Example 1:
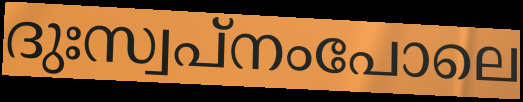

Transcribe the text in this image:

ദുഃസ്വപ്നംപോലെ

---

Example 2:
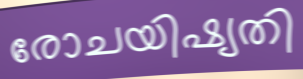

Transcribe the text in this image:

രോചയിഷ്യതി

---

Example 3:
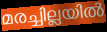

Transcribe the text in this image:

മരച്ചില്ലയിൽ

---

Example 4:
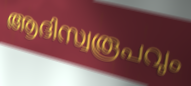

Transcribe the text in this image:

ആദിസ്വരൂപവും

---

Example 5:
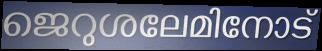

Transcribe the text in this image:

ജെറുശലേമിനോട്